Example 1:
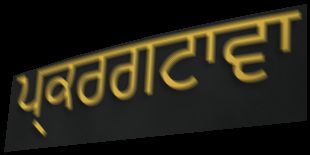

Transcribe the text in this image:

ਪ੍ਕਰਗਟਾਵਾ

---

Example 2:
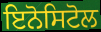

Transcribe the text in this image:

ਇਨੋਸਿਟੋਲ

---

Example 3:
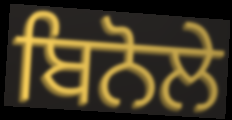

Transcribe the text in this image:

ਬਿਨੋਲੇ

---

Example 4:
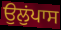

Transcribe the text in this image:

ਉਲੁਂਪਾਸ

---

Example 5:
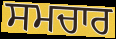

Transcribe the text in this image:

ਸਮਚਾਰ